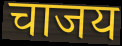
चाजय